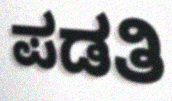
ಪಡತಿ